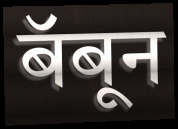
बॅबून